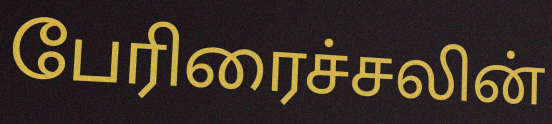
பேரிரைச்சலின்